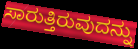
ಸಾರುತ್ತಿರುವುದನ್ನು